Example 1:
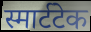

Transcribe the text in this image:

स्मार्टटेक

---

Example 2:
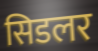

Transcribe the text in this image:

सिडलर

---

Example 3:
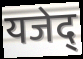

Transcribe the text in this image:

यजेद्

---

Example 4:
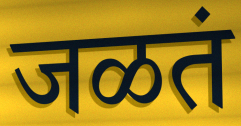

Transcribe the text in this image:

जळतं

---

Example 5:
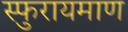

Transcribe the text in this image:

स्फुरायमाण